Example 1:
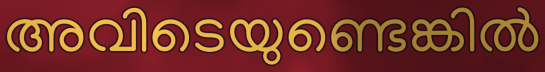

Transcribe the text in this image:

അവിടെയുണ്ടെങ്കിൽ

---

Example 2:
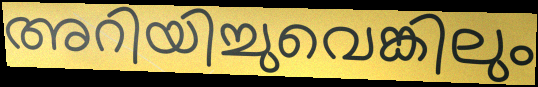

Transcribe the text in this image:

അറിയിച്ചുവെങ്കിലും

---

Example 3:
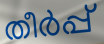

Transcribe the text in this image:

തീർപ്പ്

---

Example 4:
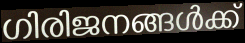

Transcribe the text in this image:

ഗിരിജനങ്ങൾക്ക്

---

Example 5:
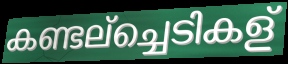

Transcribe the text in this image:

കണ്ടല്ച്ചെടികള്